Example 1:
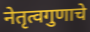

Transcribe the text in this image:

नेतृत्वगुणाचे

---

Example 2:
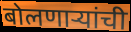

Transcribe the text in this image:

बोलणाऱ्यांची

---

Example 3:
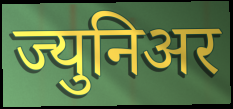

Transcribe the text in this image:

ज्युनिअर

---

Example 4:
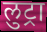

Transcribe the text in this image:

लुट्रा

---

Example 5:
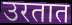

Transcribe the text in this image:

उरतात